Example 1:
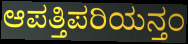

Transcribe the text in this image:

ಆಪತ್ತಿಪರಿಯನ್ತಂ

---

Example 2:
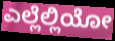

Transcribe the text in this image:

ಎಲ್ಲೆಲ್ಲಿಯೋ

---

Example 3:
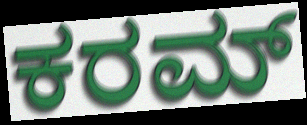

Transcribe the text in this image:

ಕರಮ್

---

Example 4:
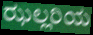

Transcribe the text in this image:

ಝಲ್ಲರಿಯ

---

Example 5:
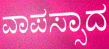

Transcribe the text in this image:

ವಾಪಸ್ಸಾದ